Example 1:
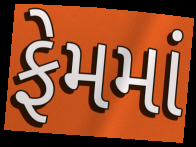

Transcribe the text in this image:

ફેમમાં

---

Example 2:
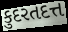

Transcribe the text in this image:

કુદરતદત્ત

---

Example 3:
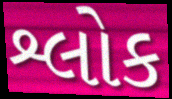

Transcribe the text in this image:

શ્લોક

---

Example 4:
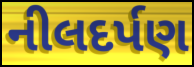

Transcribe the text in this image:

નીલદર્પણ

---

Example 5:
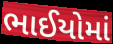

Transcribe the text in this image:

ભાઈયોમાં